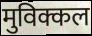
मुविक्कल